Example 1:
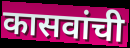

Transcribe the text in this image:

कासवांची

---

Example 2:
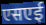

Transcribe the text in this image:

एसएई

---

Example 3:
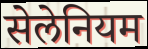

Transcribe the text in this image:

सेलेनियम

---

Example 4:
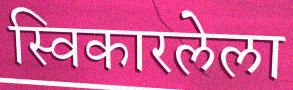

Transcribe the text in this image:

स्विकारलेला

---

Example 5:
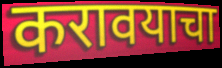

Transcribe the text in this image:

करावयाचा